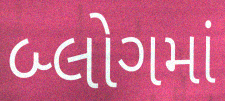
બ્લોગમાં